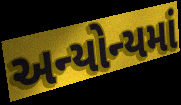
અન્યોન્યમાં